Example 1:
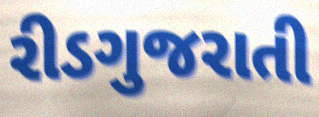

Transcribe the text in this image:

રીડગુજરાતી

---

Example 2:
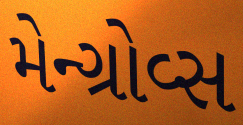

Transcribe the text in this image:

મેન્ગ્રોવ્સ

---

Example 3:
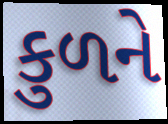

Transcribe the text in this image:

કુળને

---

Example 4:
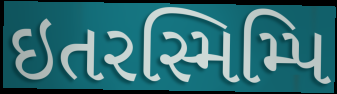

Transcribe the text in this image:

ઇતરસ્મિમ્પિ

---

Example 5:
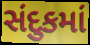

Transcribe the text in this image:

સંદુકમાં